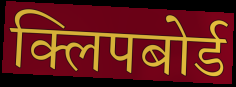
क्लिपबोर्ड